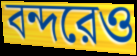
বন্দরেও